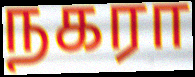
நகரா